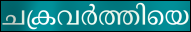
ചക്രവർത്തിയെ